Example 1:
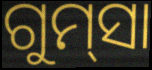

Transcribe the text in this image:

ଗୁମ୍‌ସା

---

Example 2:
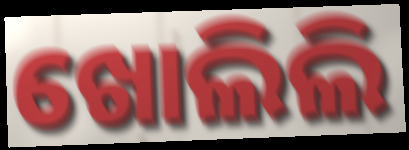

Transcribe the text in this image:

ଖୋଲିଲି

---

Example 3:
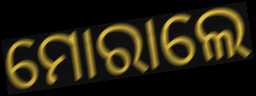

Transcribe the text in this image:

ମୋରାଲେ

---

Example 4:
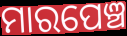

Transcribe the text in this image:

ମାରପେଞ୍ଚ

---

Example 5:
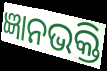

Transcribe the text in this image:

ଜ୍ଞାନଭକ୍ତି